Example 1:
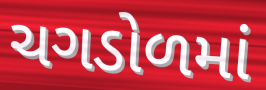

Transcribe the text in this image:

ચગડોળમાં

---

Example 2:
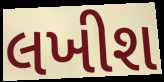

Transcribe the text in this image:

લખીશ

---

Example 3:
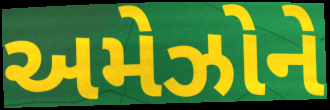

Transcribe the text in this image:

અમેઝોને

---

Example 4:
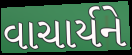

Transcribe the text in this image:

વાચાર્યને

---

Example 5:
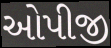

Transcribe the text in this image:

ઓપીજી